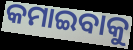
କମାଇବାକୁ